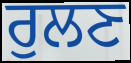
ਰੁਲਣ